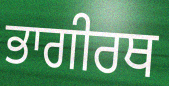
ਭਾਗੀਰਥ